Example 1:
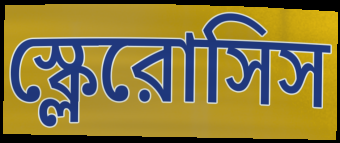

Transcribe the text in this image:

স্ক্লেরোসিস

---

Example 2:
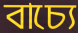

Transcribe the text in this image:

বাচ্যে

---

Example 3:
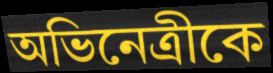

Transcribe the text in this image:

অভিনেত্রীকে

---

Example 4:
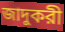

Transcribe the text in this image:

জাদুকরী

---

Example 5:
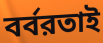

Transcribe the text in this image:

বর্বরতাই